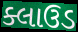
ક્લાઉડ